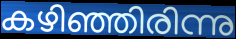
കഴിഞ്ഞിരിന്നു